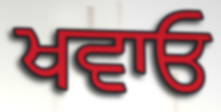
ਖਵਾਓ